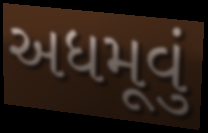
અધમૂવું